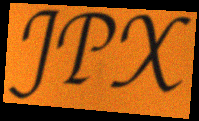
JPX